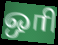
ஒரி